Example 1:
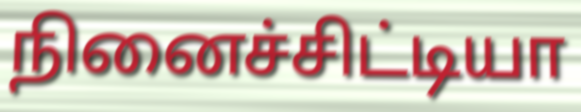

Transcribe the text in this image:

நினைச்சிட்டியா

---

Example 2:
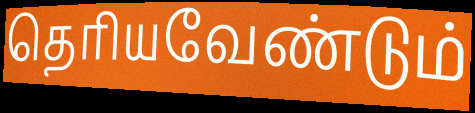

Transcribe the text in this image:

தெரியவேண்டும்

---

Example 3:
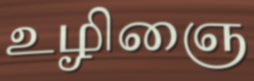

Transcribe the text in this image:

உழிஞை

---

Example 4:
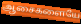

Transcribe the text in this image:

ஆசைகளையே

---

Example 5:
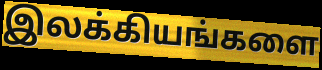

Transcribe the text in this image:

இலக்கியங்களை